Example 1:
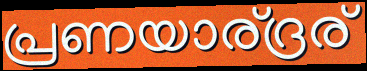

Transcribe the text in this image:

പ്രണയാര്ദ്രര്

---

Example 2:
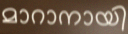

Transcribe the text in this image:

മാറാനായി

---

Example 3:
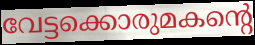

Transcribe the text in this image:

വേട്ടക്കൊരുമകന്റെ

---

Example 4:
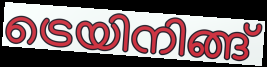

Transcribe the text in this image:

ട്രെയിനിങ്ങ്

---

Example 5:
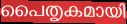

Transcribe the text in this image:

പൈതൃകമായി